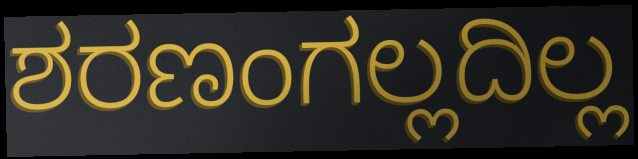
ಶರಣಂಗಲ್ಲದಿಲ್ಲ